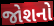
જોશનો